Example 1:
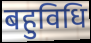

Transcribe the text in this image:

बहुविधि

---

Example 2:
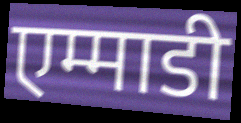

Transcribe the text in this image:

एम्माडी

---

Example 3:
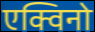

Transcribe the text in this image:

एक्विनो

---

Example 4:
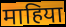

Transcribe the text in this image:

माहिया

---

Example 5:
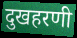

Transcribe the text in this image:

दुखहरणी